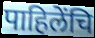
पाहिलेंचि